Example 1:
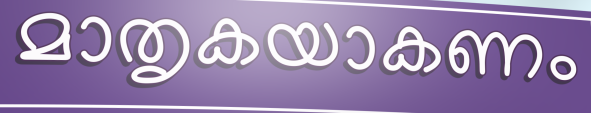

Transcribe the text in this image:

മാതൃകയാകണം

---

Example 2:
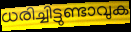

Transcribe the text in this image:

ധരിച്ചിട്ടുണ്ടാവുക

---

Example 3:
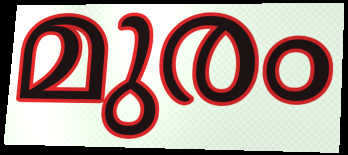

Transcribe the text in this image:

മുരം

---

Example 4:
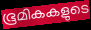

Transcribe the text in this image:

ഭൂമികകളുടെ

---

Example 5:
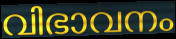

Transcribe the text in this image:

വിഭാവനം